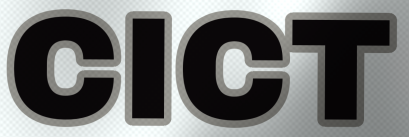
CICT